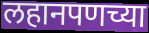
लहानपणच्या